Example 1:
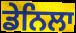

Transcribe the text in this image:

ਡੇਨਿਲਾ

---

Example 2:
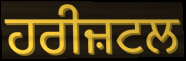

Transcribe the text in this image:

ਹਰੀਜ਼ਟਲ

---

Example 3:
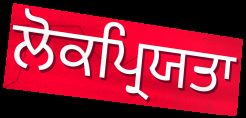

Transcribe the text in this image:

ਲੋਕਪ੍ਰਿਯਤਾ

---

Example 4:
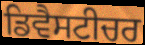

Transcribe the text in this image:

ਡਿਵੈਸਟੀਚਰ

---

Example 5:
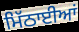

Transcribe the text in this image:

ਮਿੱਠਾਈਆਂ